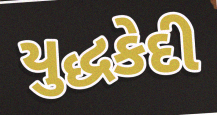
યુદ્ધકેદી